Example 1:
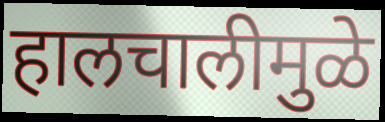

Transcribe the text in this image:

हालचालीमुळे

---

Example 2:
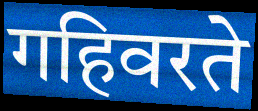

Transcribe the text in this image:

गहिवरते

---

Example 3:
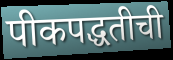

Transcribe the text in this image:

पीकपद्धतीची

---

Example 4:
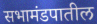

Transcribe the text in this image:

सभामंडपातील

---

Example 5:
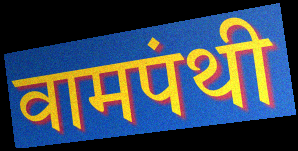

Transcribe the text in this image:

वामपंथी